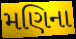
મણિના